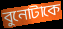
বুনোটাকে